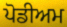
ਪੋਡੀਅਮ